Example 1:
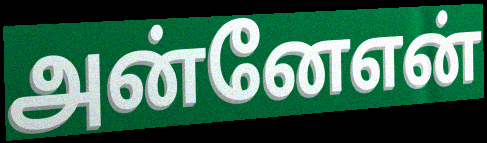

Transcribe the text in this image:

அன்னேஎன்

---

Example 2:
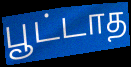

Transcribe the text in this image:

பூட்டாத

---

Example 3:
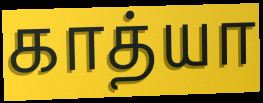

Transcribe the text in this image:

காத்யா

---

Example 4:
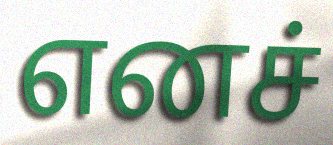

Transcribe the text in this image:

எனச்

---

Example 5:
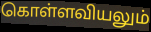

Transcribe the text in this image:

கொள்ளவியலும்